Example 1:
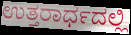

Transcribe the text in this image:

ಉತ್ತರಾರ್ಧದಲ್ಲಿ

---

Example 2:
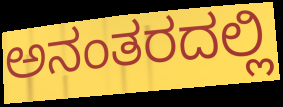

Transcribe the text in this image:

ಅನಂತರದಲ್ಲಿ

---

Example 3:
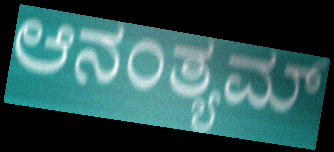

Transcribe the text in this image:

ಆನಂತ್ಯಮ್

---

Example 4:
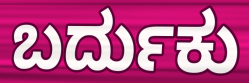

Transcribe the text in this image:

ಬರ್ದುಕು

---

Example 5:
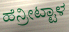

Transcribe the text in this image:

ಹೆನ್ರೀಟ್ಟಾಳ